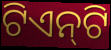
ଟିଏନ୍‌ଟି